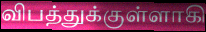
விபத்துக்குள்ளாகி